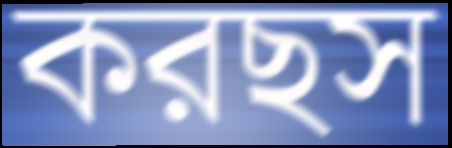
করছস